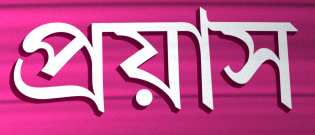
প্রয়াস